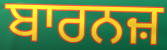
ਬਾਰਨਜ਼